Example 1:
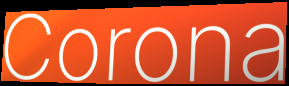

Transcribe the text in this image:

Corona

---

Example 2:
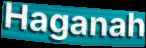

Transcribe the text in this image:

Haganah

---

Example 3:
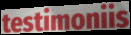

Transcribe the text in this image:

testimoniis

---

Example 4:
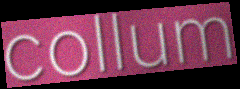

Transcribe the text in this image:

collum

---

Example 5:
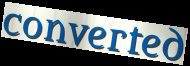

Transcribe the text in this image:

converted